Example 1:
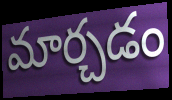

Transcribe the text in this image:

మార్చడం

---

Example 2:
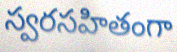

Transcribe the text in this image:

స్వరసహితంగా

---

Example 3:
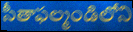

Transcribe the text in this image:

సీతాఫల్మండిలోని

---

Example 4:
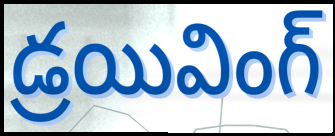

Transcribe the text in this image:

డ్రయివింగ్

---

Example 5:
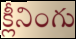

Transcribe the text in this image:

క్లీనింగు